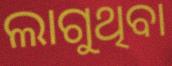
ଲାଗୁଥିବା